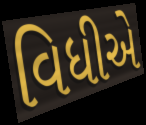
વિધીએ